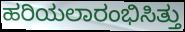
ಹರಿಯಲಾರಂಭಿಸಿತ್ತು